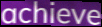
achieve